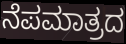
ನೆಪಮಾತ್ರದ